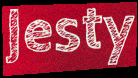
Jesty